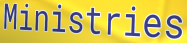
Ministries